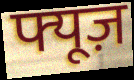
फ्यूज़